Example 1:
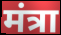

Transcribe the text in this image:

मंत्रा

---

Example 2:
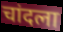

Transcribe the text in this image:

चांदला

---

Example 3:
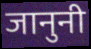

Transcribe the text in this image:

जानुनी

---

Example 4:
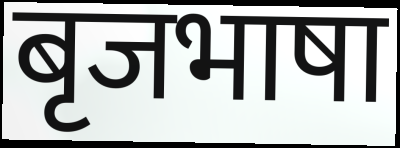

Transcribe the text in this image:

बृजभाषा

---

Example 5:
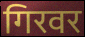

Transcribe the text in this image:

गिरवर